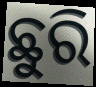
ଛୁରି